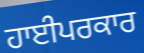
ਹਾਈਪਰਕਾਰ